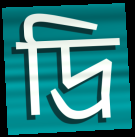
দ্রি